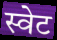
स्वेट